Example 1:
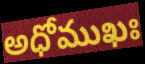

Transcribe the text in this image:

అధోముఖః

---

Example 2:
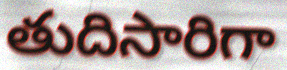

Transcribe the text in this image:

తుదిసారిగా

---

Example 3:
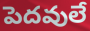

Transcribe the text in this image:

పెదవులే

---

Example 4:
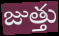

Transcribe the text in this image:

జుత్తు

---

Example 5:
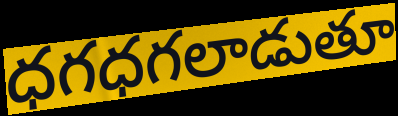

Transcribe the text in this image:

ధగధగలాడుతూ